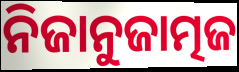
ନିଜାନୁଜାତ୍ମଜ